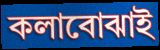
কলাবোঝাই